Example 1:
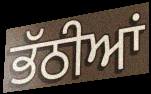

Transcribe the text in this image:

ਭੱਠੀਆਂ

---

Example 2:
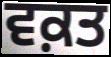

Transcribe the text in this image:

ਵਕ਼ਤ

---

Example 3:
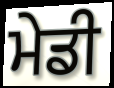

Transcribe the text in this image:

ਮੇਡੀ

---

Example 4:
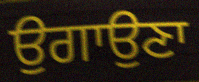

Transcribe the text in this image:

ਉਗਾਉਣਾ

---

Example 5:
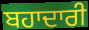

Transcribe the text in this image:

ਬਹਾਦਾਰੀ